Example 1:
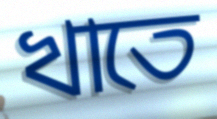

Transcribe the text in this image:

খাতে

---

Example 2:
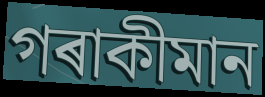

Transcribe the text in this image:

গৰাকীমান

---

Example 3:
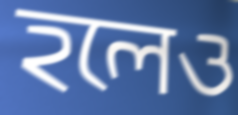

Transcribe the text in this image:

হলেও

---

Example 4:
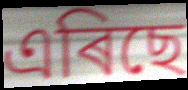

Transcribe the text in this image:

এৰিছে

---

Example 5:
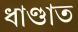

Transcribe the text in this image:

ধাণ্ডাত